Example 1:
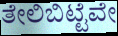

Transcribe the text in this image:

ತೇಲಿಬಿಟ್ಟೆವೇ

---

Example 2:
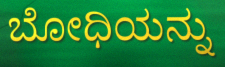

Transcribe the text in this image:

ಬೋಧಿಯನ್ನು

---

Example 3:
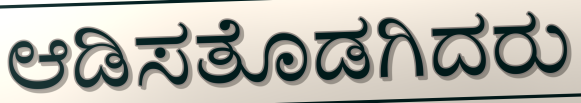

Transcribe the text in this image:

ಆಡಿಸತೊಡಗಿದರು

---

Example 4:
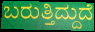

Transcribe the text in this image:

ಬರುತ್ತಿದ್ದುದೆ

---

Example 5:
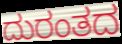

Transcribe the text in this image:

ದುರಂತದ